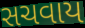
સચવાય